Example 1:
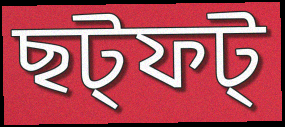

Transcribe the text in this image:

ছট্‌ফট্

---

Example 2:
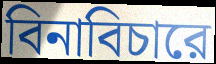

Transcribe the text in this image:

বিনাবিচারে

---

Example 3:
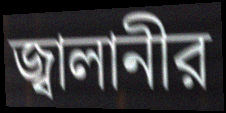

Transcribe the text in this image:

জ্বালানীর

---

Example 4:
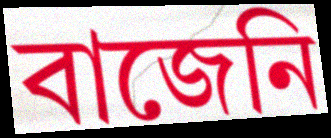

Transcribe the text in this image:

বাজেনি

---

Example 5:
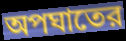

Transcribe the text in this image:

অপঘাতের